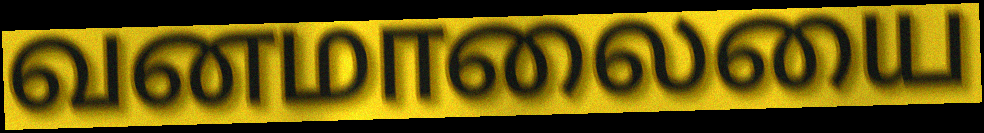
வனமாலையை